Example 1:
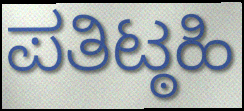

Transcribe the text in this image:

ಪತಿಟ್ಠಹಿ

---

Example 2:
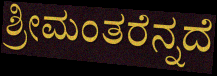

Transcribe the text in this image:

ಶ್ರೀಮಂತರೆನ್ನದೆ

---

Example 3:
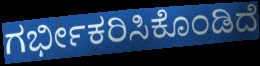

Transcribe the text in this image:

ಗರ್ಭೀಕರಿಸಿಕೊಂಡಿದೆ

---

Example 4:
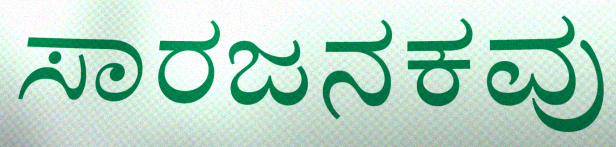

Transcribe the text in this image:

ಸಾರಜನಕವು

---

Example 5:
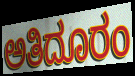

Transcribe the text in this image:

ಅತಿದೂರಂ